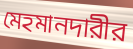
মেহমানদারীর